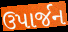
ઉપાર્જન